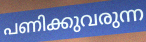
പണിക്കുവരുന്ന